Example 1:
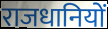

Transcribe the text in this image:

राजधानियों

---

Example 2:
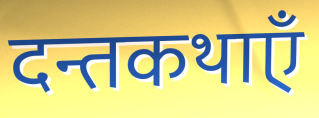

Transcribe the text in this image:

दन्तकथाएँ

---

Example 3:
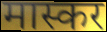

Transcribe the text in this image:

मास्कर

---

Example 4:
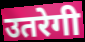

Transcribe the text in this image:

उतरेगी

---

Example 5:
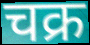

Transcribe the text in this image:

चक्र